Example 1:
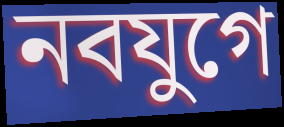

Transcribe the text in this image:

নবযুগে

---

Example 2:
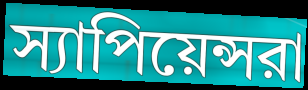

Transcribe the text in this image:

স্যাপিয়েন্সরা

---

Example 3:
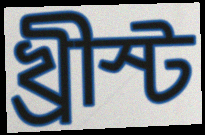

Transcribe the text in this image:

খ্রীস্ট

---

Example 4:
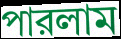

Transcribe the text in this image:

পারলাম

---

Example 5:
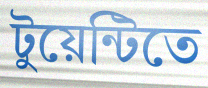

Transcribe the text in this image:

টুয়েন্টিতে